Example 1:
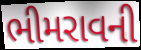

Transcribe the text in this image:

ભીમરાવની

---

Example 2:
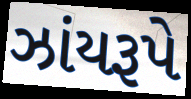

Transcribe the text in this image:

ઝાંયરૂપે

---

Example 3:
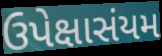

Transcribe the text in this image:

ઉપેક્ષાસંયમ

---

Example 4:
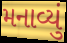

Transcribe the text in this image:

મનાવ્યું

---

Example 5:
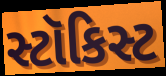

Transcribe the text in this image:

સ્ટૉકિસ્ટ